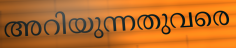
അറിയുന്നതുവരെ